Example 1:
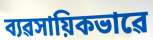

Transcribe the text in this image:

ব্যৱসায়িকভাৱে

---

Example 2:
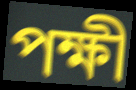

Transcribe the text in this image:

পক্ষী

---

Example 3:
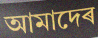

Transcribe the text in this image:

আমাদেৰ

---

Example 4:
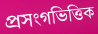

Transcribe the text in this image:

প্ৰসংগভিত্তিক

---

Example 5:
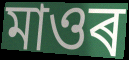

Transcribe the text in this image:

মাওৰ